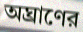
অঘ্রাণের